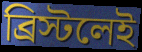
ব্রিস্টলেই